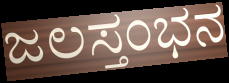
ಜಲಸ್ತಂಭನ